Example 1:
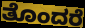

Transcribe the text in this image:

ತೊಂದರೆ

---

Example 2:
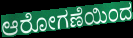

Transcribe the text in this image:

ಆರೋಗಣೆಯಿಂದ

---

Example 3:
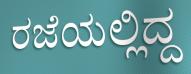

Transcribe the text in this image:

ರಜೆಯಲ್ಲಿದ್ದ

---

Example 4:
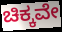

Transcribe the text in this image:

ಚಿಕ್ಕವೇ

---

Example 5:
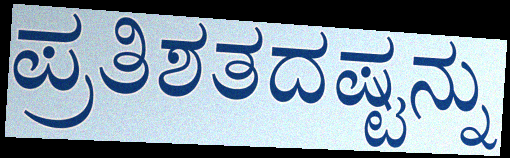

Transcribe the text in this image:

ಪ್ರತಿಶತದಷ್ಟನ್ನು